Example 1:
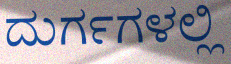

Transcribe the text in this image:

ದುರ್ಗಗಳಲ್ಲಿ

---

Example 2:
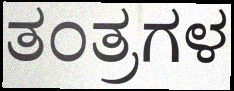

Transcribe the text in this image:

ತಂತ್ರಗಳ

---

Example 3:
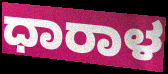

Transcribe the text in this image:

ಧಾರಾಳ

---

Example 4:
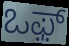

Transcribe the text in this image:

ಒಫ಼್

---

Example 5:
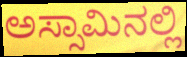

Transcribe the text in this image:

ಅಸ್ಸಾಮಿನಲ್ಲಿ